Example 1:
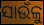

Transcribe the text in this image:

ସାଉଁଳୁ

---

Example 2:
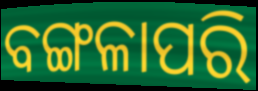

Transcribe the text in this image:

ବଙ୍ଗଳାପରି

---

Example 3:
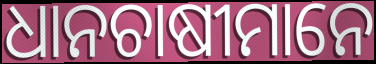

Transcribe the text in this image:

ଧାନଚାଷୀମାନେ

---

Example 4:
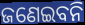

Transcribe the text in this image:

ଜଣେଇବନି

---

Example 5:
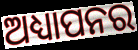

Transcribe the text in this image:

ଅଧ୍ୟାପନର